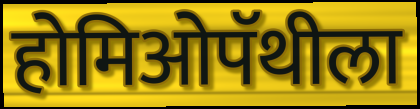
होमिओपॅथीला